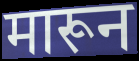
मारून